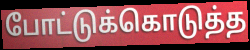
போட்டுக்கொடுத்த